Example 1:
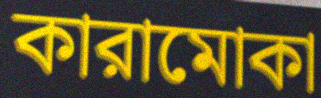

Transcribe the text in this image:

কারামোকা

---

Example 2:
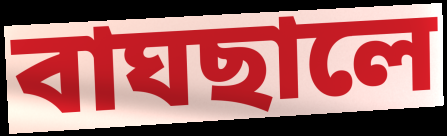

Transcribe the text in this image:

বাঘছালে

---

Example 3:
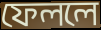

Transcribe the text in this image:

ফেললে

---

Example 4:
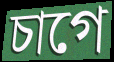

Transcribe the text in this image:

চাগে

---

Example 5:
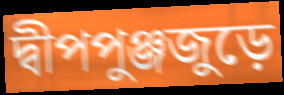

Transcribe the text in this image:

দ্বীপপুঞ্জজুড়ে